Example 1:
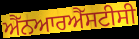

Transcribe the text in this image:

ਐੱਨਆਰਐੱਸਟੀਸੀ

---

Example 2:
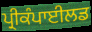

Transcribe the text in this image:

ਪ੍ਰੀਕੰਪਾਈਲਡ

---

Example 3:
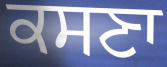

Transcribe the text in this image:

ਕਸਣਾ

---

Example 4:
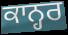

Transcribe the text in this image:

ਕਾਨ੍ਹਰ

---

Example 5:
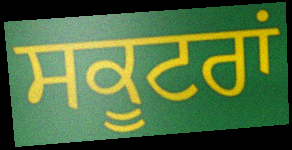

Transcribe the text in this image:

ਸਕੂਟਰਾਂ